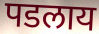
पडलाय